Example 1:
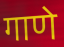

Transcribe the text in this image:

गाणे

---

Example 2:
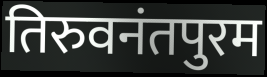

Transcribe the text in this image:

तिरुवनंतपुरम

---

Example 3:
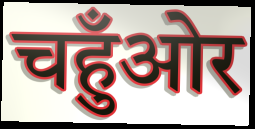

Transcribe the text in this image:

चहुँओर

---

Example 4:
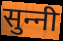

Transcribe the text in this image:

सुन्नी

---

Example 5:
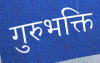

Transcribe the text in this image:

गुरुभक्ति